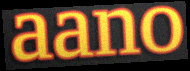
aano